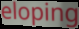
eloping